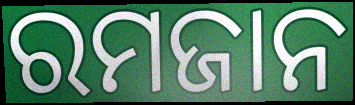
ରମଜାନ